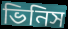
ভিনিস